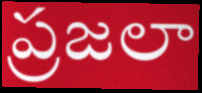
ప్రజలా